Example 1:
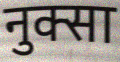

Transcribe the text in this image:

नुक्सा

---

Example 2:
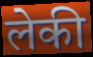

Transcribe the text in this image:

लेकी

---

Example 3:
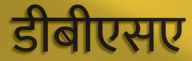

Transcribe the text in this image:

डीबीएसए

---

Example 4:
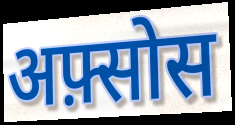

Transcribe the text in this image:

अफ़्सोस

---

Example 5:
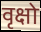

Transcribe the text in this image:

वृक्षो